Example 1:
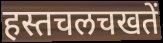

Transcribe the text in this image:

हस्तचलचखतें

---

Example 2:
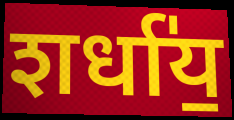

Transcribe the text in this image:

शर्धा॑य॒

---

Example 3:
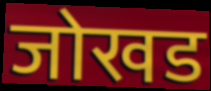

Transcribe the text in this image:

जोखड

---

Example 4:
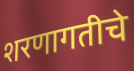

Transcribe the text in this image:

शरणागतीचे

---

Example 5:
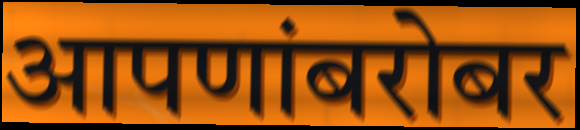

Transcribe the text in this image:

आपणांबरोबर